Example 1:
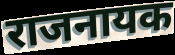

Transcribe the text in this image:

राजनायक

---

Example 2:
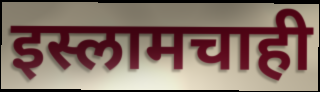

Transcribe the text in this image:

इस्लामचाही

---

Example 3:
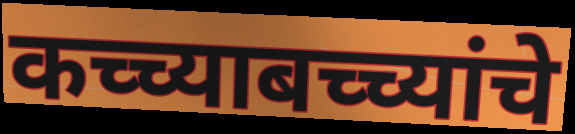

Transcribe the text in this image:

कच्च्याबच्च्यांचे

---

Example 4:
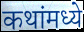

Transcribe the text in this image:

कथांमध्ये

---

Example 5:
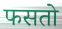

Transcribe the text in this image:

फसतो